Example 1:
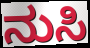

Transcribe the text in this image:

ನುಸಿ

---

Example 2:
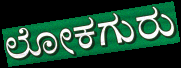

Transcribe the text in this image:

ಲೋಕಗುರು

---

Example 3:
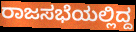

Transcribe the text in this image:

ರಾಜಸಭೆಯಲ್ಲಿದ್ದ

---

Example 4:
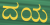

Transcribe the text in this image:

ದಯ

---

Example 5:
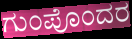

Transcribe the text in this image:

ಗುಂಪೊಂದರ